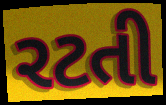
રટતી